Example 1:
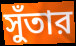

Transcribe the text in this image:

সুঁতার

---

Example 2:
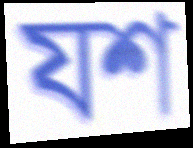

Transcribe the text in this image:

যশ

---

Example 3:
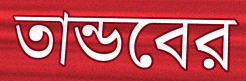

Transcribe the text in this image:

তান্ডবের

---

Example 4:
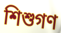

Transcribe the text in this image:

শিশুগণ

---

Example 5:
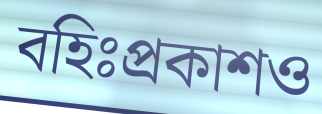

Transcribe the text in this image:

বহিঃপ্রকাশও